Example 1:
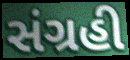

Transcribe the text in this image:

સંગ્રહી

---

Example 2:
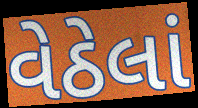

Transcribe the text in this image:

વેઠેલાં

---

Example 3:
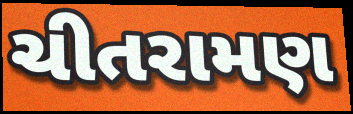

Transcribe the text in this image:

ચીતરામણ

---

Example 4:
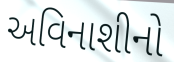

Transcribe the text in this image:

અવિનાશીનો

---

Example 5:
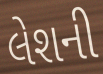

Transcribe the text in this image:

લેશની